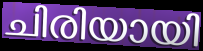
ചിരിയായി